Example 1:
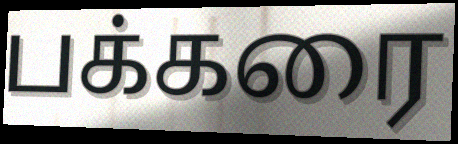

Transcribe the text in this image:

பக்கரை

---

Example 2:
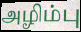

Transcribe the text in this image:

அழிம்பு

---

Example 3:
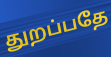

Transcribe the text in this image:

துறப்பதே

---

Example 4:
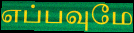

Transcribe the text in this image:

எப்பவுமே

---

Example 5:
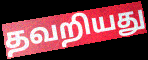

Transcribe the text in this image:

தவறியது